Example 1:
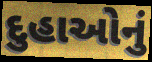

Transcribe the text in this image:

દુહાઓનું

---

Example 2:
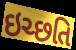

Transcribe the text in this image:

ઇચ્છતિ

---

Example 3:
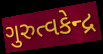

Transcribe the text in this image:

ગુરુત્વકેન્દ્ર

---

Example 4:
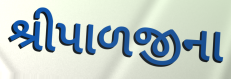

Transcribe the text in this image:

શ્રીપાળજીના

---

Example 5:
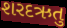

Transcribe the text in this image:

શરદઋતુ